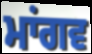
ਮਾਂਗਵ